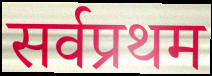
सर्वप्रथम